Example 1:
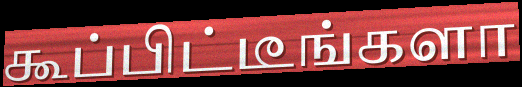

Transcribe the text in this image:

கூப்பிட்டீங்களா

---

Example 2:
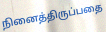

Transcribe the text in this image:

நினைத்திருப்பதை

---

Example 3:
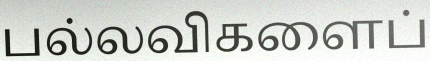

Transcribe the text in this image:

பல்லவிகளைப்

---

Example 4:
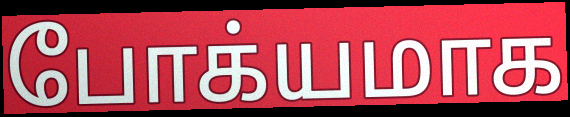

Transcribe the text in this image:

போக்யமாக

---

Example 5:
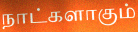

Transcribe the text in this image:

நாட்களாகும்